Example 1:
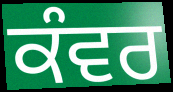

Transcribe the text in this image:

ਕੰਵਰ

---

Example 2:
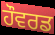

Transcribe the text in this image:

ਹੌਵਰਡ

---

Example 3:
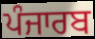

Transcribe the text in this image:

ਪੰਜਾਰਬ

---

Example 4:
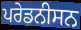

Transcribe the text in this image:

ਪਰੇਡਨੀਸਨ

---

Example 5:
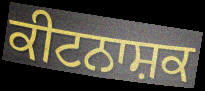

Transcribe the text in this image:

ਕੀਟਨਾਸ਼ਕ